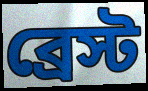
ব্রেস্ট